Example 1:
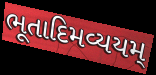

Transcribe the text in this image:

ભૂતાદિમવ્યયમ્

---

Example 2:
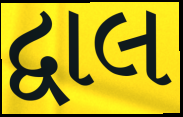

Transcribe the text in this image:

દ્વાલ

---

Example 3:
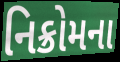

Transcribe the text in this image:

નિક્રોમના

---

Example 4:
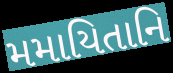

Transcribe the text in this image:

મમાયિતાનિ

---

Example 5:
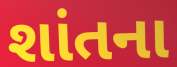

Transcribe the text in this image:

શાંતના